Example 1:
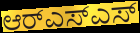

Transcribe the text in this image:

ಆರ್‌ಎಸ್ಎಸ್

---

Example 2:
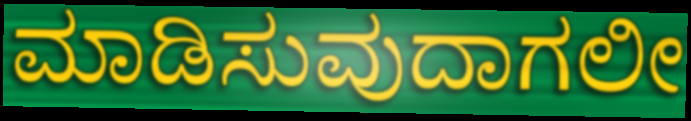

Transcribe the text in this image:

ಮಾಡಿಸುವುದಾಗಲೀ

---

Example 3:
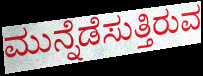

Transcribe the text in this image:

ಮುನ್ನೆಡೆಸುತ್ತಿರುವ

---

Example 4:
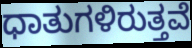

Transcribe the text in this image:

ಧಾತುಗಳಿರುತ್ತವೆ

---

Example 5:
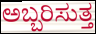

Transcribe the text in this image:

ಅಬ್ಬರಿಸುತ್ತ